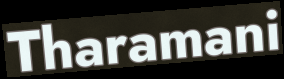
Tharamani